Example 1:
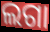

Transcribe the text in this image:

ଲଗା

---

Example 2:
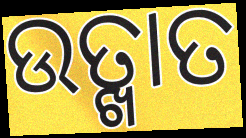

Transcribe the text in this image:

ଉତ୍ଖାତ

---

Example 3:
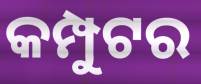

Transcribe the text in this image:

କମ୍ପୁଟର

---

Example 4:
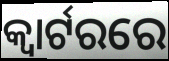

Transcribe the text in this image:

କ୍ଵାର୍ଟରରେ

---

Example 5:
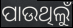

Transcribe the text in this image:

ପାଉଥିଲୁଁ